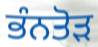
ਭੰਨਤੋੜ